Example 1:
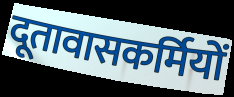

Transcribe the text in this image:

दूतावासकर्मियों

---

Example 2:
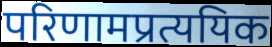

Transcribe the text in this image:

परिणामप्रत्ययिक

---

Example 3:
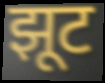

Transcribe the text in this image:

झूट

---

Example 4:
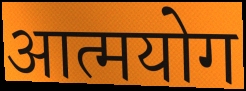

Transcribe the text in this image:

आत्मयोग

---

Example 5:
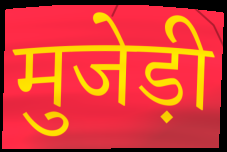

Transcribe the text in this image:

मुजेड़ी